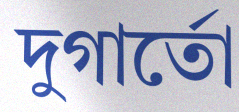
দুগার্তো